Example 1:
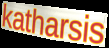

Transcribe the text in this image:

katharsis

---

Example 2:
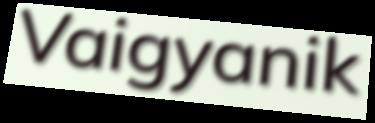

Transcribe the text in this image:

Vaigyanik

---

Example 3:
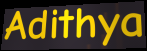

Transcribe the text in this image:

Adithya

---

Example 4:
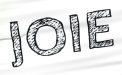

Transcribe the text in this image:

JOIE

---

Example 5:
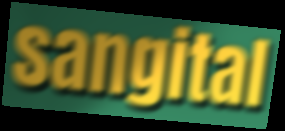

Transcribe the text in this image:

sangital